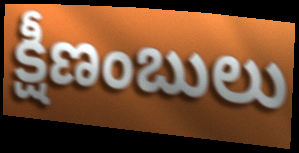
క్షీణంబులు